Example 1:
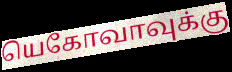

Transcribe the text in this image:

யெகோவாவுக்கு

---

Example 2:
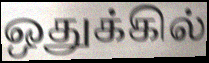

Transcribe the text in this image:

ஒதுக்கில்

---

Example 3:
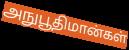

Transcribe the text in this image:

அநுபூதிமான்கள்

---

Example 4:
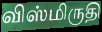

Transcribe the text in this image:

விஸ்மிருதி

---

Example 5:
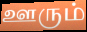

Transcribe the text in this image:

ஊரும்